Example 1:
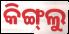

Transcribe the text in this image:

କିଙ୍ଗ୍‌ଲୁ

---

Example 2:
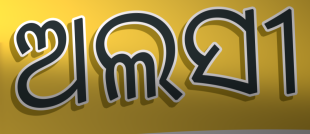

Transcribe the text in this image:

ଅଲସୀ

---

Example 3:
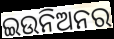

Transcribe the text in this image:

ଇଉନିଅନର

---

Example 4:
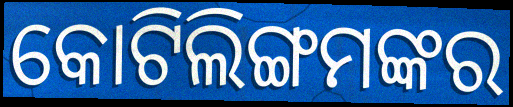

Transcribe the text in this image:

କୋଟିଲିଙ୍ଗମଙ୍କର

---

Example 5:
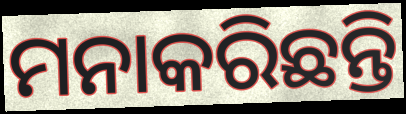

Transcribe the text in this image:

ମନାକରିଛନ୍ତି